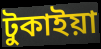
টুকাইয়া